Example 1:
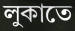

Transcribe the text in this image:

লুকাতে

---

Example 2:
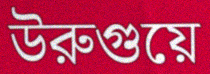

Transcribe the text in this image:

উরুগুয়ে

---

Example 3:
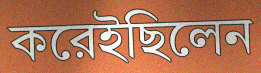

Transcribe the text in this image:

করেইছিলেন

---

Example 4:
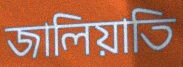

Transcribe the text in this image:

জালিয়াতি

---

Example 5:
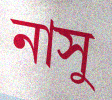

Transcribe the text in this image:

নাসু